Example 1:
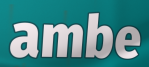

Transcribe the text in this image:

ambe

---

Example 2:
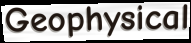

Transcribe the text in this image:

Geophysical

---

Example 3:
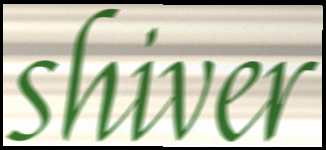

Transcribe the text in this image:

shiver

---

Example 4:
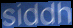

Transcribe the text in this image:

siddh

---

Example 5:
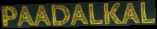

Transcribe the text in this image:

PAADALKAL